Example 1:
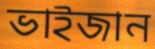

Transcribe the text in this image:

ভাইজান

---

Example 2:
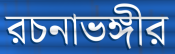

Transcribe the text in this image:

রচনাভঙ্গীর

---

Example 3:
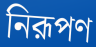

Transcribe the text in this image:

নিরূপণ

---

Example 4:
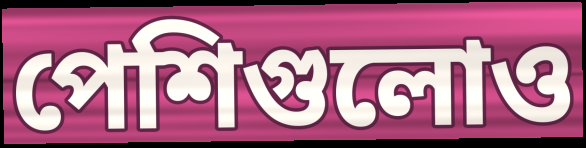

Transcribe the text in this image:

পেশিগুলোও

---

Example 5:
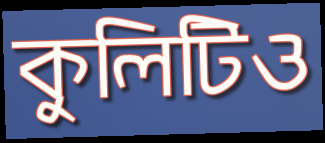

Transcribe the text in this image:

কুলিটিও